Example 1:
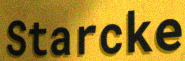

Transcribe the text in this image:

Starcke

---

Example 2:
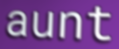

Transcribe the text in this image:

aunt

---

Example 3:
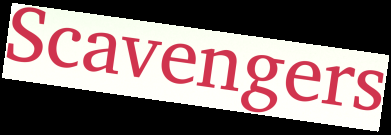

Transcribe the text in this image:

Scavengers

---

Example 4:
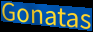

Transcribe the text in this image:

Gonatas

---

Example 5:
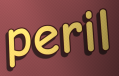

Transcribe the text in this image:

peril